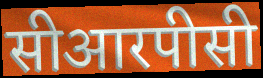
सीआरपीसी